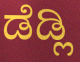
ಡೆಡ್ಲಿ